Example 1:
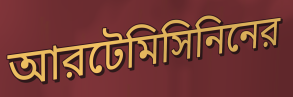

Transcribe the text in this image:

আরটেমিসিনিনের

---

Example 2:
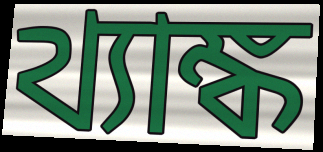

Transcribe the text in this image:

থ্যাঙ্ক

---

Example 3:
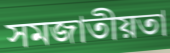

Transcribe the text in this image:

সমজাতীয়তা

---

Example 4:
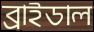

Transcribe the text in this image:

ব্রাইডাল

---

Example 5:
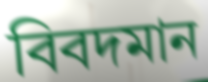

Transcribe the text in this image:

বিবদমান